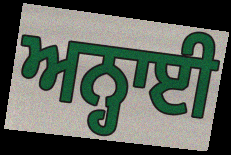
ਅਨ੍ਹਾਈ